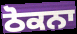
ਠੋਕਨਾ